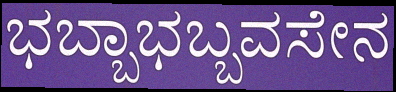
ಭಬ್ಬಾಭಬ್ಬವಸೇನ